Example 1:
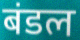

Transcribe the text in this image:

बंडल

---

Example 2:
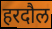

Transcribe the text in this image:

हरदौल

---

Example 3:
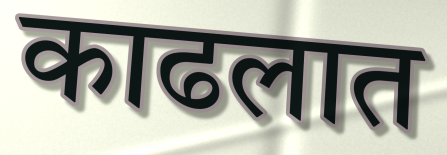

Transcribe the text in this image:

काढलात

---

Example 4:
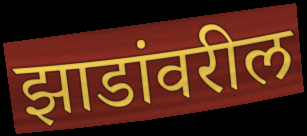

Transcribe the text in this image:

झाडांवरील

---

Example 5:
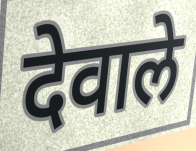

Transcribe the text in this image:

देवाले